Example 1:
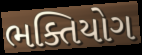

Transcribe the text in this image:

ભક્તિયોગ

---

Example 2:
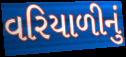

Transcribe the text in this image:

વરિયાળીનું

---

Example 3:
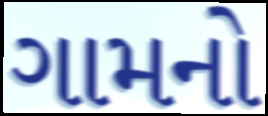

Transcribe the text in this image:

ગામનો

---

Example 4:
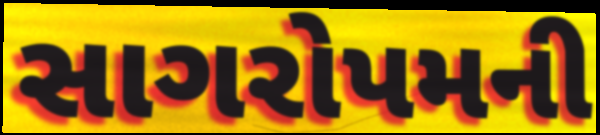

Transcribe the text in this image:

સાગરોપમની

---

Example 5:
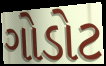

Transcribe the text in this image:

ગોડોટ